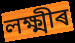
লক্ষ্মীৰ